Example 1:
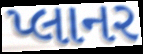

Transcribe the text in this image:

પ્લાનર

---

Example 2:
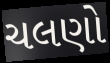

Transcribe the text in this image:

ચલણો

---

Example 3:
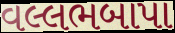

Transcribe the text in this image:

વલ્લભબાપા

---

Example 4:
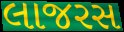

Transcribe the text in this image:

લાજરસ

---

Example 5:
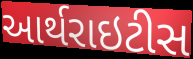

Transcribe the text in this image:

આર્થરાઇટીસ